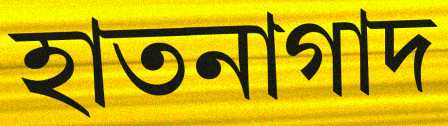
হাতনাগাদ